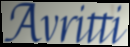
Avritti